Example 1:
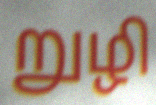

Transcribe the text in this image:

றுழி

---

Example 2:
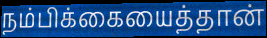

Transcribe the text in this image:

நம்பிக்கையைத்தான்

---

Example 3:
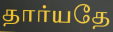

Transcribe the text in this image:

தார்யதே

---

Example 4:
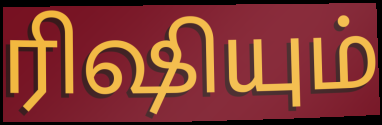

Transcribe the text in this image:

ரிஷியும்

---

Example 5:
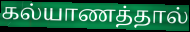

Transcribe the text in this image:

கல்யாணத்தால்